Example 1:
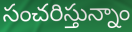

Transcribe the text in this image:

సంచరిస్తున్నాం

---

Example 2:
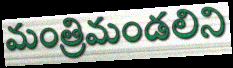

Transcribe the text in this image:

మంత్రిమండలిని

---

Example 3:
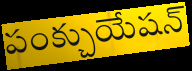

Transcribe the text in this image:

పంక్చుయేషన్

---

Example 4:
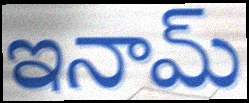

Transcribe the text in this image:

ఇనామ్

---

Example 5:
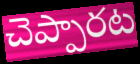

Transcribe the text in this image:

చెప్పారట